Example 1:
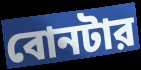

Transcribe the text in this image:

বোনটার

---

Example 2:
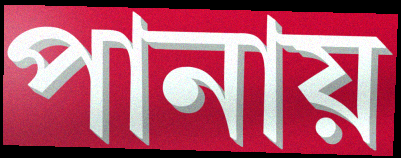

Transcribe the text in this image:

পানায়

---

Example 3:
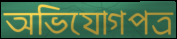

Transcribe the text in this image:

অভিযোগপত্র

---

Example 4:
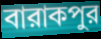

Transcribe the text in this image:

বারাকপুর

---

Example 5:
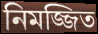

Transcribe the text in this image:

নিমজ্জিত